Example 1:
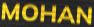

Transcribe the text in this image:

MOHAN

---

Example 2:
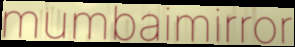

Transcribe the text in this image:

mumbaimirror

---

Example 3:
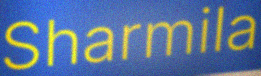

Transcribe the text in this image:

Sharmila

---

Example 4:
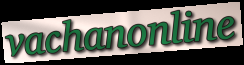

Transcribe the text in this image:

vachanonline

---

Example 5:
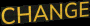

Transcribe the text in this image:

CHANGE